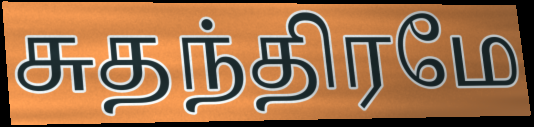
சுதந்திரமே